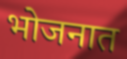
भोजनात